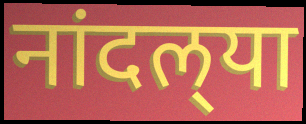
नांदल्या